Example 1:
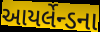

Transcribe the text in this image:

આયર્લેન્ડના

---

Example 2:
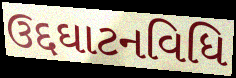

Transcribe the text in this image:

ઉદ્દઘાટનવિધિ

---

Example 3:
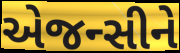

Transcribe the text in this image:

એજન્સીને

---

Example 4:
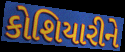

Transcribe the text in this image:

કોશિયારીને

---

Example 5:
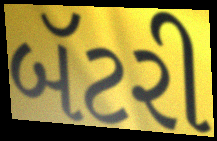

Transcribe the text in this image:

બૅટરી